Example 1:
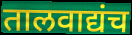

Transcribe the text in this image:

तालवाद्यंच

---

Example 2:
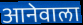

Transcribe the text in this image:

आनेवाला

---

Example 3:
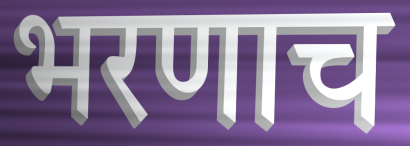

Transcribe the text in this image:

भरणाच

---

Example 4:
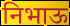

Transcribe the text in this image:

निभाऊ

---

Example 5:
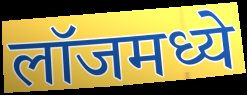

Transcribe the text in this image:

लॉजमध्ये